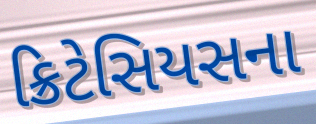
ક્રિટેસિયસના